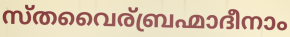
സ്തവൈര്ബ്രഹ്മാദീനാം